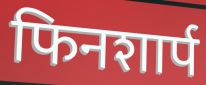
फिनशार्प